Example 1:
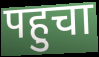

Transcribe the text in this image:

पहुचा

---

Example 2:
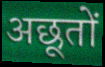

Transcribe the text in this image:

अछूतों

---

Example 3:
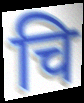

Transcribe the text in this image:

चि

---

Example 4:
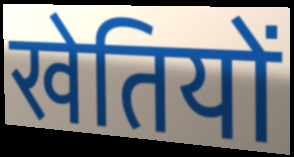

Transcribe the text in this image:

खेतियों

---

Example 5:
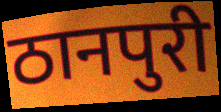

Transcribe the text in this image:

ठानपुरी